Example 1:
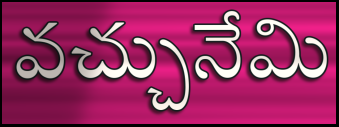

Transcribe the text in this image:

వచ్చునేమి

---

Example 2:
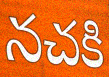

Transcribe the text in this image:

నచకి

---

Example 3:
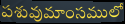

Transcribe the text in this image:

పశువుమాంసములో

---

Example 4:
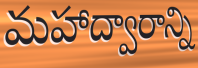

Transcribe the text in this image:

మహాద్వారాన్ని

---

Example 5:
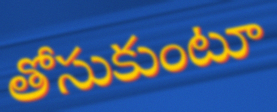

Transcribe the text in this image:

తోసుకుంటూ